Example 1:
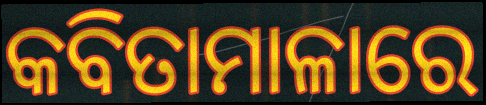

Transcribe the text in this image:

କବିତାମାଳାରେ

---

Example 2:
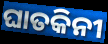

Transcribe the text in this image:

ଘାତକିନୀ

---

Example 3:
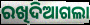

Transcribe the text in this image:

ରଖିଦିଆଗଲା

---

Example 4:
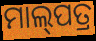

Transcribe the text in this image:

ମାଲ୍‌ପତ୍ର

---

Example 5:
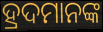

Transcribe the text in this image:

ହ୍ରଦମାନଙ୍କ